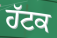
ਹੱਟਕ